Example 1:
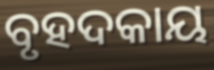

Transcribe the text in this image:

ବୃହଦକାୟ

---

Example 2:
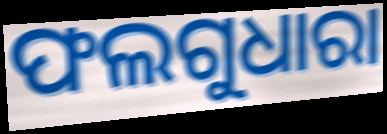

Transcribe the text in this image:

ଫଲଗୁଧାରା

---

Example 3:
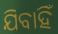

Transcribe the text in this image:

ଯିବାହିଁ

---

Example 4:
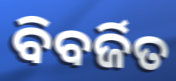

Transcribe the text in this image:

ବିବର୍ଜିତ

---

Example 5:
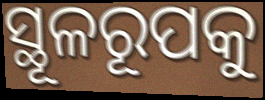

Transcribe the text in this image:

ସ୍ଥୂଳରୂପକୁ